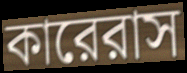
কারেরাস